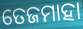
ତେଜମାହା